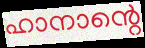
ഹാനാന്റെ